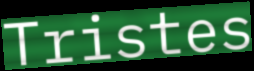
Tristes